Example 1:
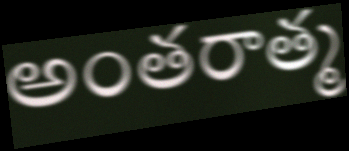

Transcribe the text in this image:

అంతరాత్మ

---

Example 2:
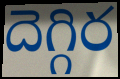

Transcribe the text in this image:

దెగ్గిర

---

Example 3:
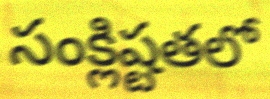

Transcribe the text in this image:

సంక్లిష్టతలో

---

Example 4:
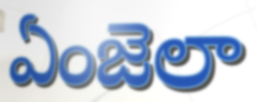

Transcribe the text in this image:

ఏంజెలా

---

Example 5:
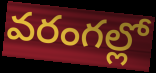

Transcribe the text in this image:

వరంగల్లో